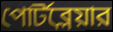
পোর্টব্লেয়ার